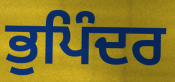
ਭੁਪਿੰਦਰ